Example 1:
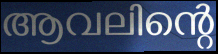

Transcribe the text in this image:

ആവലിന്റെ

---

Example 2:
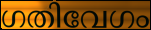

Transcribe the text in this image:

ഗതിവേഗം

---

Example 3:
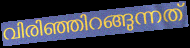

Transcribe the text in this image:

വിരിഞ്ഞിറങ്ങുന്നത്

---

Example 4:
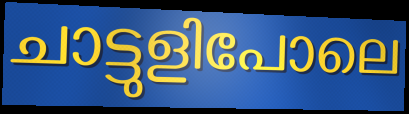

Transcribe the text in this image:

ചാട്ടുളിപോലെ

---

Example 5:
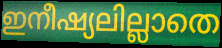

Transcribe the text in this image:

ഇനീഷ്യലില്ലാതെ